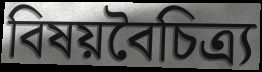
বিষয়বৈচিত্র্য